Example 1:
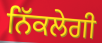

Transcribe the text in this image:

ਨਿੱਕਲੇਗੀ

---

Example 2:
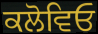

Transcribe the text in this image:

ਕਲੋਵਿਓ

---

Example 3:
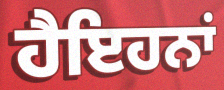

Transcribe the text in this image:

ਹੈਇਹਨਾਂ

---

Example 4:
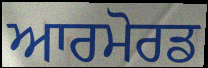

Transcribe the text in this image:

ਆਰਮੋਰਡ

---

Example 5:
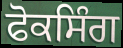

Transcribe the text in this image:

ਫੋਕਸਿੰਗ